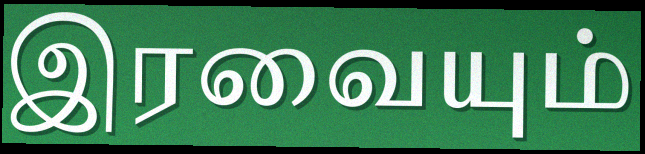
இரவையும்